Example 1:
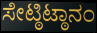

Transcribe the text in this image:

ಸೇಟ್ಠಿಟ್ಠಾನಂ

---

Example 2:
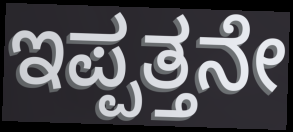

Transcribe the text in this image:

ಇಪ್ಪತ್ತನೇ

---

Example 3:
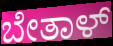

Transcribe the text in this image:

ಬೇತಾಳ್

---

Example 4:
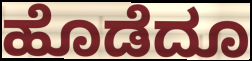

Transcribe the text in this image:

ಹೊಡೆದೂ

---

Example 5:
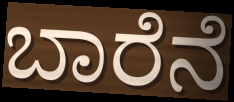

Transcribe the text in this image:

ಬಾರೆನೆ